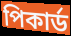
পিকার্ড